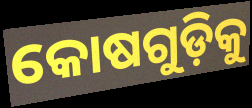
କୋଷଗୁଡ଼ିକୁ